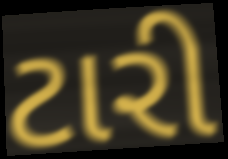
ટારી